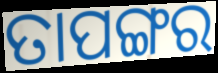
ତାପଙ୍ଗର